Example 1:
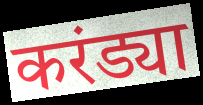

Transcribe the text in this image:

करंड्या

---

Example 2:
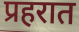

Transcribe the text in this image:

प्रहरात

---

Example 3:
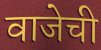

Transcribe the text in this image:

वाजेची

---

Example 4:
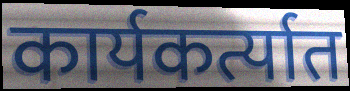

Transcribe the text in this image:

कार्यकर्त्यात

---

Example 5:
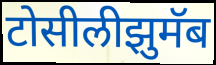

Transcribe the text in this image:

टोसीलीझुमॅब